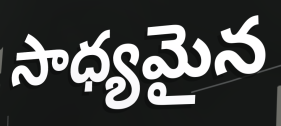
సాధ్యమైన